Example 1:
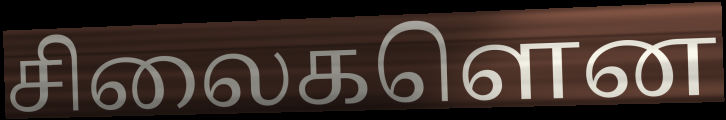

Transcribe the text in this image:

சிலைகளென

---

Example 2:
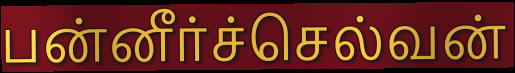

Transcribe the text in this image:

பன்னீர்ச்செல்வன்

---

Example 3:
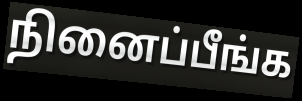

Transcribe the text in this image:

நினைப்பீங்க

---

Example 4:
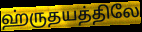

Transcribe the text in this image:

ஹ்ருதயத்திலே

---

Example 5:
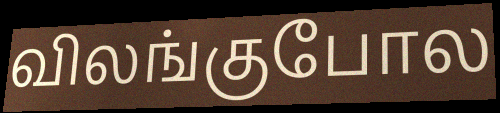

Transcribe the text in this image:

விலங்குபோல